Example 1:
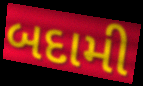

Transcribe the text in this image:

બદામી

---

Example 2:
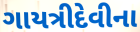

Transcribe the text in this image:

ગાયત્રીદેવીના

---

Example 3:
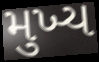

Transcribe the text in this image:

મુખ્ય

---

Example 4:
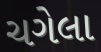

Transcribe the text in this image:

ચગેલા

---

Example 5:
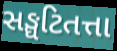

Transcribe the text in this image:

સઙ્ઘટિતત્તા